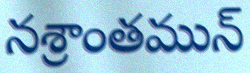
నశ్రాంతమున్